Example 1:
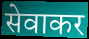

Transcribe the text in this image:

सेवाकर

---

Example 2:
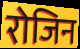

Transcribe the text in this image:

रोजिन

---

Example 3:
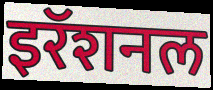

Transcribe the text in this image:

इरॅशनल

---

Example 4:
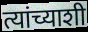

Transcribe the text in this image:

त्यांच्याशी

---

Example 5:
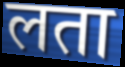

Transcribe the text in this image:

लता